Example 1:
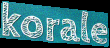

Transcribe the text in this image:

korale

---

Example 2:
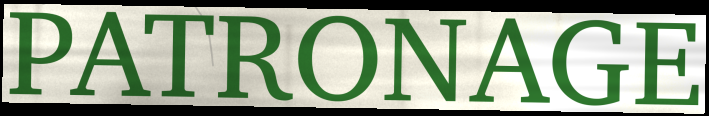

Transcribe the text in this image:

PATRONAGE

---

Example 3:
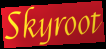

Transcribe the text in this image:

Skyroot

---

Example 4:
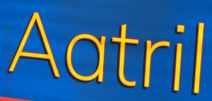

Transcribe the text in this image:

Aatril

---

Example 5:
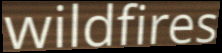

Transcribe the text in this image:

wildfires